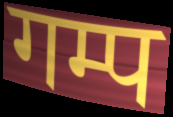
गम्प